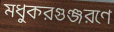
মধুকরগুঞ্জরণে